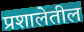
प्रशालेतील